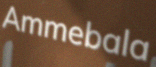
Ammebala